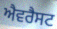
ਐਵਰੈਸਟ